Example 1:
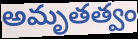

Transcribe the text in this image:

అమృతత్వం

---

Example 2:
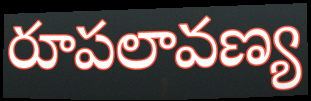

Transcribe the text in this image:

రూపలావణ్య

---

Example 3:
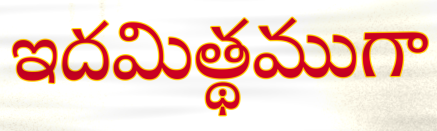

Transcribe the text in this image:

ఇదమిత్థముగా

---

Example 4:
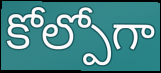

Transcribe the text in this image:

కోల్పోగా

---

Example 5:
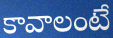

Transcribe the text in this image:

కావాలంటే